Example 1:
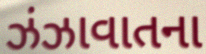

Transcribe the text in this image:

ઝંઝાવાતના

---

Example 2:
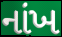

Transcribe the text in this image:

નાંખ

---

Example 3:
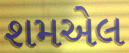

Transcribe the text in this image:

શમએલ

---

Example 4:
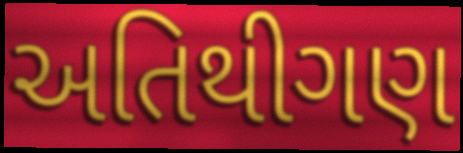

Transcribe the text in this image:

અતિથીગણ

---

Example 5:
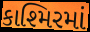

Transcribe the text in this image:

કાશ્મિરમાં